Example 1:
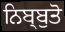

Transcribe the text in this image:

ਨਿਬ੍ਬੁਤੋ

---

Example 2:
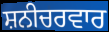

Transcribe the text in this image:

ਸ਼ਨੀਚਰਵਾਰ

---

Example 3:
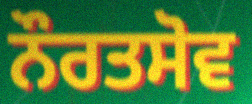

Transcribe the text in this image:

ਨੌਰਤਸੋਵ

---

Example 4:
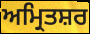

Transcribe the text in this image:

ਅਮ੍ਰਿਤਸ਼ਰ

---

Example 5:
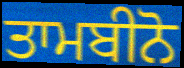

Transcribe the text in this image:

ਤਾਮਬੀਨੋ